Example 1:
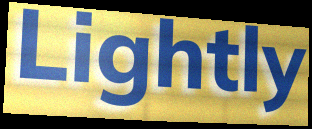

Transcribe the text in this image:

Lightly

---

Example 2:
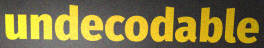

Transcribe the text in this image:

undecodable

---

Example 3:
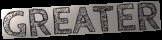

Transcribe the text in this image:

GREATER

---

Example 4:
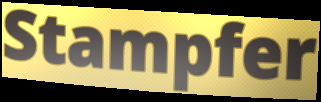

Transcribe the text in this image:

Stampfer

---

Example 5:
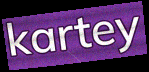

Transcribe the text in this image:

kartey